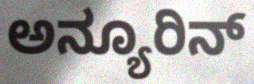
ಅನ್ಯೂರಿನ್